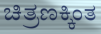
ಚಿತ್ರಣಕ್ಕಿಂತ